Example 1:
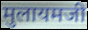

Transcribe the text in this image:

मुलायमजी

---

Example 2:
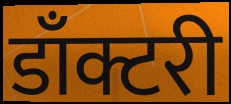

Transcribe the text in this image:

डाँक्टरी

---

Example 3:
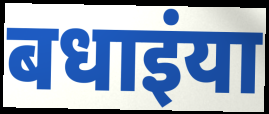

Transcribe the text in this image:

बधाइंया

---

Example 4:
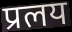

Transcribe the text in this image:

प्रलय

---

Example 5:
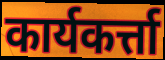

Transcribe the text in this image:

कार्यकर्त्ता